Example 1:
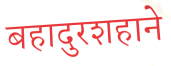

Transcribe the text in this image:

बहादुरशहाने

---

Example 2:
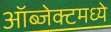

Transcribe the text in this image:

ऑब्जेक्टमध्ये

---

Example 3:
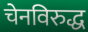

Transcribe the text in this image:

चेनविरुद्ध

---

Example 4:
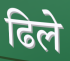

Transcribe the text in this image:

ढिले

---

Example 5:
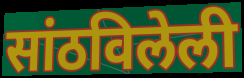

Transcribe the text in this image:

सांठविलेली